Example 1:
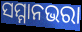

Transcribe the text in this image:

ସମ୍ମାନଭରା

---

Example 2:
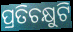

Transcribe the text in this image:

ପ୍ରତିଚକ୍ଷୁଟି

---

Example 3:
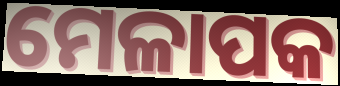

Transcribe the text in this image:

ମେଳାପକ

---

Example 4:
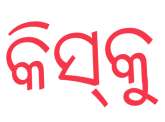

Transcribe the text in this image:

କିସ୍‌କୁ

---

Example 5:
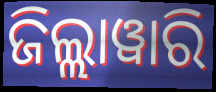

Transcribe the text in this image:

ଜିଲ୍ଲାୱାରି